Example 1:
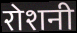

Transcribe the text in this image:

रोशनी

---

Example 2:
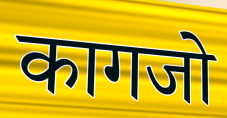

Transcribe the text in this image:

कागजो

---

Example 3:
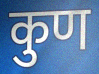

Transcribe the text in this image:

कुण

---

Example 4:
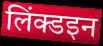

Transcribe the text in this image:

लिंक्डइन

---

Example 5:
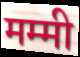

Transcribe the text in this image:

मम्मी